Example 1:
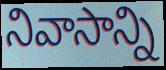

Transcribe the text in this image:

నివాసాన్ని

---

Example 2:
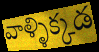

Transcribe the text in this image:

వాళ్ళిక్కడ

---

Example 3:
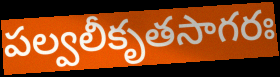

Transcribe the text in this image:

పల్వలీకృతసాగరః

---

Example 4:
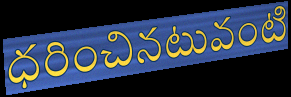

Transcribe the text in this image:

ధరించినటువంటి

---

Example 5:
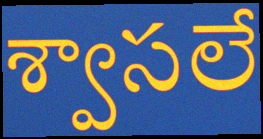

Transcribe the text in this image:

శ్వాసలే